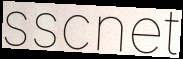
sscnet